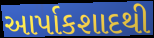
આર્પાકશાદથી